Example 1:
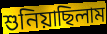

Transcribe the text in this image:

শুনিয়াছিলাম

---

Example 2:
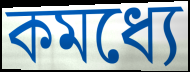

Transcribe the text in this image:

কমধ্যে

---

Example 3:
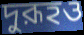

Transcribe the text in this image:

দুরূহও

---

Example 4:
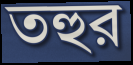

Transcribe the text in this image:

তহুর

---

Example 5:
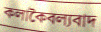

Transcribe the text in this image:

কলাকৈবল্যবাদ